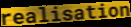
realisation